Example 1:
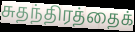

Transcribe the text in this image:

சுதந்திரத்தைக்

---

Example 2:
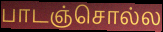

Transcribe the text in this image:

பாடஞ்சொல்ல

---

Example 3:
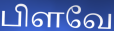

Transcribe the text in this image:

பிளவே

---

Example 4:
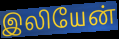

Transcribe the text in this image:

இலியேன்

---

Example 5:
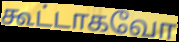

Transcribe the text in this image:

கூட்டாகவோ